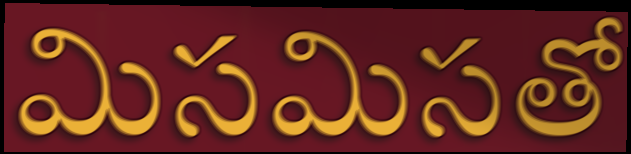
మిసమిసతో